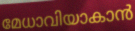
മേധാവിയാകാൻ